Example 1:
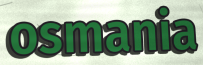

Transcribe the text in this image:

osmania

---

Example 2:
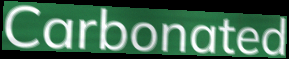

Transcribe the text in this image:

Carbonated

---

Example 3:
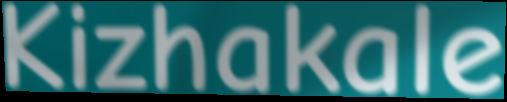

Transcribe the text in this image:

Kizhakale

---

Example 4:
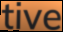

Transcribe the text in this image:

tive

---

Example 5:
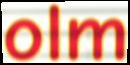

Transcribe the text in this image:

olm